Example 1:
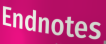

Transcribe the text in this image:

Endnotes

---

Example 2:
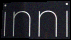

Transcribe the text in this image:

inni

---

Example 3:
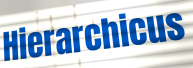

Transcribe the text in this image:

Hierarchicus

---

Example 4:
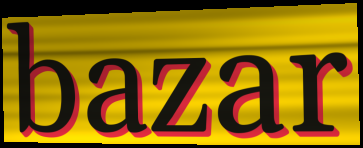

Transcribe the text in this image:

bazar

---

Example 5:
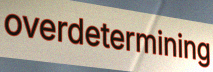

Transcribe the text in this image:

overdetermining